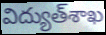
విద్యుత్‌శాఖ